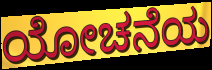
ಯೋಚನೆಯ